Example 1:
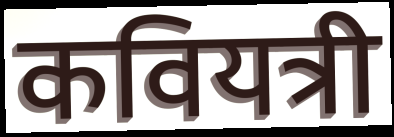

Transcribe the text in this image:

कवियत्री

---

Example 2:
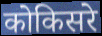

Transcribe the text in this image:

कोकिसरे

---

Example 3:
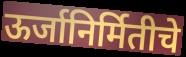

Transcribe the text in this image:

ऊर्जानिर्मितीचे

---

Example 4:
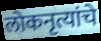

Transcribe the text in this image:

लोकनृत्यांचे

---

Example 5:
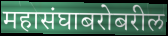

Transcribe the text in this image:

महासंघाबरोबरील